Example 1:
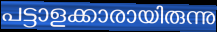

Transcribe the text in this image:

പട്ടാളക്കാരായിരുന്നു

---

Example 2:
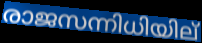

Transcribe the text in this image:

രാജസന്നിധിയില്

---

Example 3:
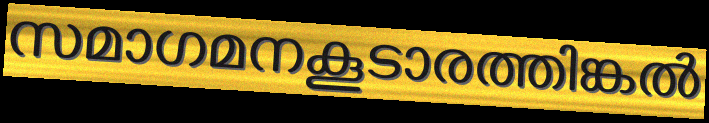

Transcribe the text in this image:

സമാഗമനകൂടാരത്തിങ്കൽ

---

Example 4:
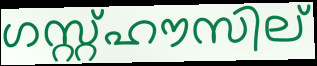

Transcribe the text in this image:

ഗസ്റ്റ്ഹൗസില്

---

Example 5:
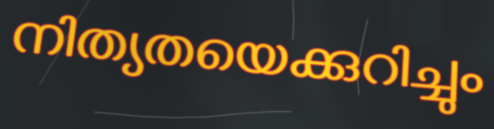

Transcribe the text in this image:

നിത്യതയെക്കുറിച്ചും